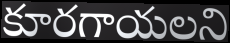
కూరగాయలని